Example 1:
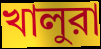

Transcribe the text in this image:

খালুরা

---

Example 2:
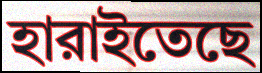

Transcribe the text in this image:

হারাইতেছে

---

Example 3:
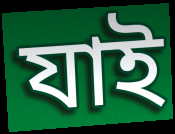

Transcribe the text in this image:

যাই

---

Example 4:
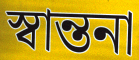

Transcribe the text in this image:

স্বান্তনা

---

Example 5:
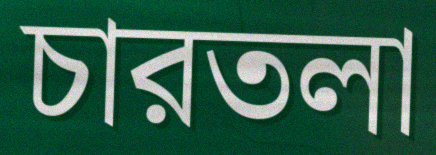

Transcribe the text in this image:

চারতলা